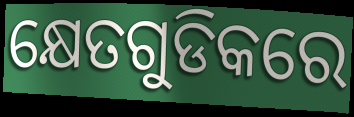
କ୍ଷେତଗୁଡିକରେ